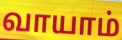
வாயாம்